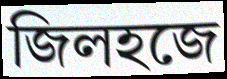
জিলহজে